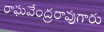
రాఘవేంద్రరావుగారు